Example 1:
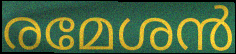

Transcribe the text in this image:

രമേശൻ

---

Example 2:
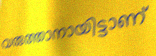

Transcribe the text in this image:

വരുത്താനായിട്ടാണ്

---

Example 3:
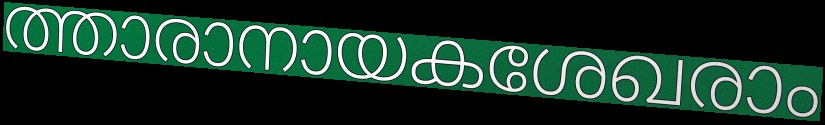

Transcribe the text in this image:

ത്താരാനായകശേഖരാം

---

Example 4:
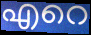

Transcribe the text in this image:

എറെ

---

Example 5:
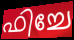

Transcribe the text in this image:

ഫിച്ചേ